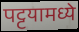
पट्टयामध्ये